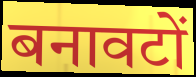
बनावटों